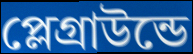
প্লেগ্রাউন্ডে